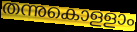
തന്നുകൊളളാം